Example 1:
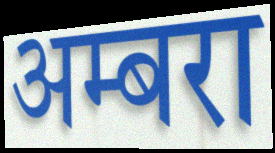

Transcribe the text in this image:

अम्बरा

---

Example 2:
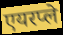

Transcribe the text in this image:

एयरप्ले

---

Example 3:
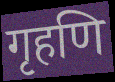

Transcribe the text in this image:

गृहणि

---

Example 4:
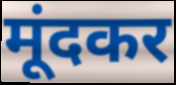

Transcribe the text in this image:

मूंदकर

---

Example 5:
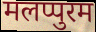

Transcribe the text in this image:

मलप्पुरम